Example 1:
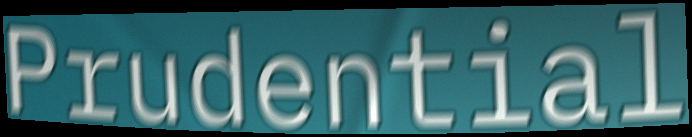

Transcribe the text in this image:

Prudential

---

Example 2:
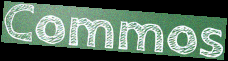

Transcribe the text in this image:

Commos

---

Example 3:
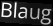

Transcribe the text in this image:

Blaug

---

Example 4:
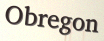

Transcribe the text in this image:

Obregon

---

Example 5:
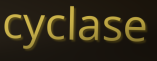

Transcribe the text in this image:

cyclase